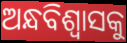
ଅନ୍ଧବିଶ୍ୱାସକୁ